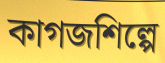
কাগজশিল্পে